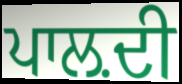
ਪਾਲ਼ਦੀ